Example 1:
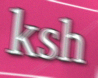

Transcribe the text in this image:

ksh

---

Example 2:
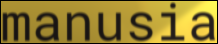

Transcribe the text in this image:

manusia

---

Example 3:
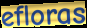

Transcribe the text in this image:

efloras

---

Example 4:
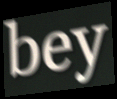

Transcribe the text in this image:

bey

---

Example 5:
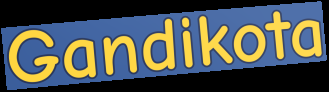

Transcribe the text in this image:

Gandikota